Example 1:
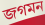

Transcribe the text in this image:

জগমন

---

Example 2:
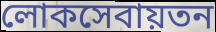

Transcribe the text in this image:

লোকসেবায়তন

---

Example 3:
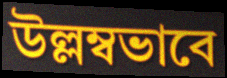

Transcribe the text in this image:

উল্লম্বভাবে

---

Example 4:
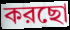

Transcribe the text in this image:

করছো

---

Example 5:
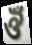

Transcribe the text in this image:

ঔঁ